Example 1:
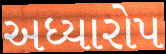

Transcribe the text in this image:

અધ્યારોપ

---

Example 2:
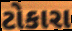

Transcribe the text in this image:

ટોકારા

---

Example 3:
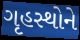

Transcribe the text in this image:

ગૃહસ્થોને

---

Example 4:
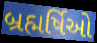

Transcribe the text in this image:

બ્રહ્મર્ષિઓ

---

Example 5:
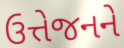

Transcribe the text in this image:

ઉત્તેજનને